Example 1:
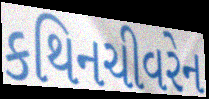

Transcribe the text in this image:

કથિનચીવરેન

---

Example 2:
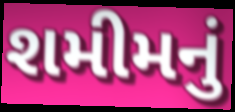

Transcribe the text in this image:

શમીમનું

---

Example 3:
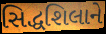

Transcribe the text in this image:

સિદ્ધશિલાને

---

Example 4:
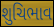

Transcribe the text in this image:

શુચિભાવ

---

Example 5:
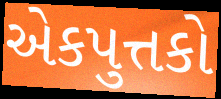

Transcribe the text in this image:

એકપુત્તકો